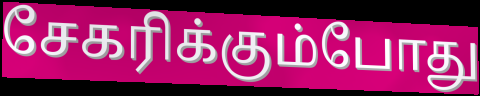
சேகரிக்கும்போது